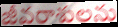
జీవరాశులను